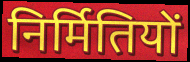
निर्मितियों